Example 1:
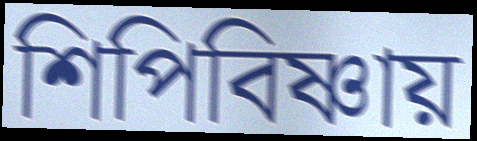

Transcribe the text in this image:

শিপিবিষ্ণায়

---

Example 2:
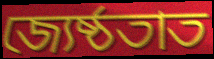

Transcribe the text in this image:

জ্যেষ্ঠতাত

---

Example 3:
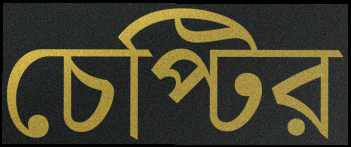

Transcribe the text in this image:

চেপ্টির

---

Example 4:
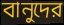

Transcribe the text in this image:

বানুদের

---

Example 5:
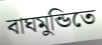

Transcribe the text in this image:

বাঘমুন্ডিতে